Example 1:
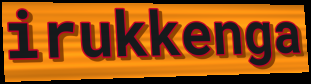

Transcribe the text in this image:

irukkenga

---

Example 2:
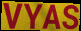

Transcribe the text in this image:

VYAS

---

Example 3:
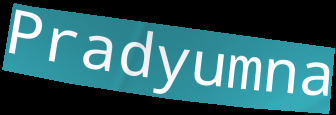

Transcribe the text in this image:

Pradyumna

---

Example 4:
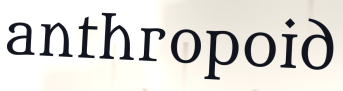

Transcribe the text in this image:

anthropoid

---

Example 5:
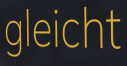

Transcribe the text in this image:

gleicht